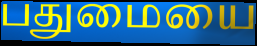
பதுமையை